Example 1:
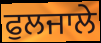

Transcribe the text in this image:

ਫੁਲਜਾਲੇ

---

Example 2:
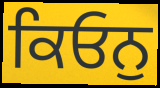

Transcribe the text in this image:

ਕਿਓਨੁ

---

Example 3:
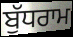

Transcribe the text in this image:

ਬੁੱਧਰਾਮ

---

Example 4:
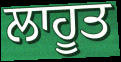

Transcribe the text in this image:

ਲਾਹੂਤ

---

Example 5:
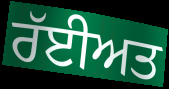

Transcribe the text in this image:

ਰੱਈਅਤ